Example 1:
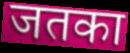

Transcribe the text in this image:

जतका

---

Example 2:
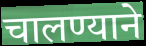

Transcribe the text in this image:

चालण्याने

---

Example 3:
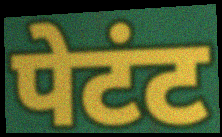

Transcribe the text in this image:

पेटंट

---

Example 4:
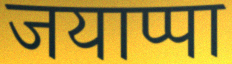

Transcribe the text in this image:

जयाप्पा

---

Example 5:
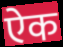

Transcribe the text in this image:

ऐक